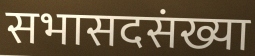
सभासदसंख्या